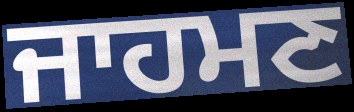
ਜਾਹਮਣ